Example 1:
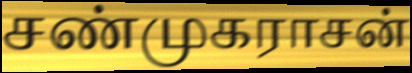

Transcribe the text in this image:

சண்முகராசன்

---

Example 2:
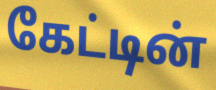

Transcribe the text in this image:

கேட்டின்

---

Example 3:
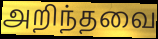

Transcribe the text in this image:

அறிந்தவை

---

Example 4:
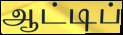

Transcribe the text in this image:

ஆட்டிப்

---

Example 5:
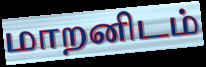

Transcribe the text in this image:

மாறனிடம்